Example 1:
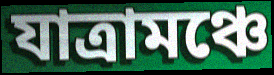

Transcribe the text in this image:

যাত্রামঞ্চে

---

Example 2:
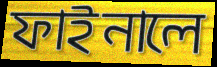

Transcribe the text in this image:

ফাইনালে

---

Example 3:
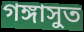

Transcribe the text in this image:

গঙ্গাসুত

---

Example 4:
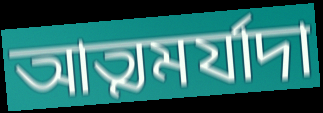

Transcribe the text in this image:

আত্মমর্যাদা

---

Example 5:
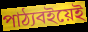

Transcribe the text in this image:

পাঠ্যবইয়েই